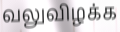
வலுவிழக்க